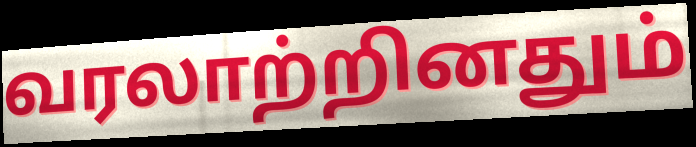
வரலாற்றினதும்